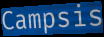
Campsis